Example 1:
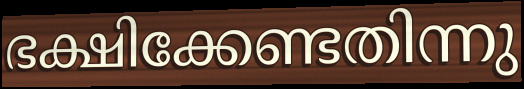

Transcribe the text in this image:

ഭക്ഷിക്കേണ്ടതിന്നു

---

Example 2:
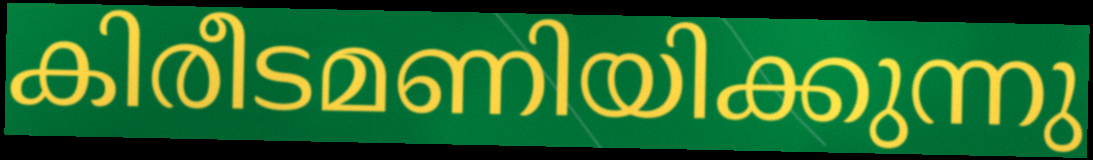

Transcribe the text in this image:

കിരീടമണിയിക്കുന്നു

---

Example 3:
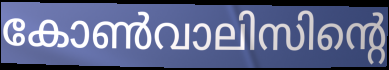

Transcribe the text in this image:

കോൺവാലിസിന്റെ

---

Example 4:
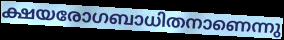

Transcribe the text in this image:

ക്ഷയരോഗബാധിതനാണെന്നു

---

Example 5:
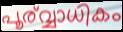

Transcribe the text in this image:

പൂര്വ്വാധികം